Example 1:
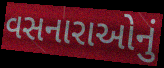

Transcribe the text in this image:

વસનારાઓનું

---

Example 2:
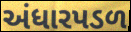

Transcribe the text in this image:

અંધારપડળ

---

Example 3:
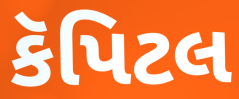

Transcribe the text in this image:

કૅપિટલ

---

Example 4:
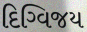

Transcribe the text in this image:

દિગ્વિજય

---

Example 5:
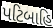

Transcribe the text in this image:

પટિબાહિ